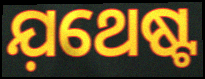
ଯ଼ଥେଷ୍ଟ